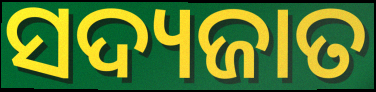
ସଦ୍ୟଜାତ